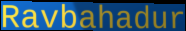
Ravbahadur